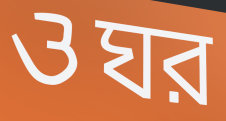
ওঘর